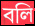
বলি